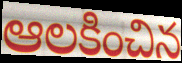
ఆలకించిన